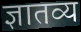
ज्ञातव्य